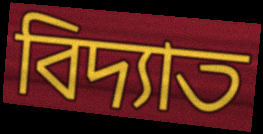
বিদ্যাত